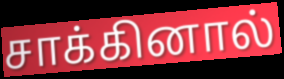
சாக்கினால்